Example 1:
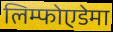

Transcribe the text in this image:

लिम्फोएडेमा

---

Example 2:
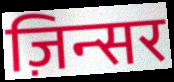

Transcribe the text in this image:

ज़िन्सर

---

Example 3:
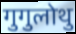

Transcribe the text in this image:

गुगुलोथु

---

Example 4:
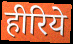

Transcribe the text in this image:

हीरिये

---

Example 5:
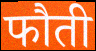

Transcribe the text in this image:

फौती